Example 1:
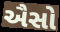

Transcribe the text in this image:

ઐસો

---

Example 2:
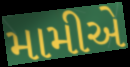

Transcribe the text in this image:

મામીએ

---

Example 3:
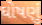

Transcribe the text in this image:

ઘોષણું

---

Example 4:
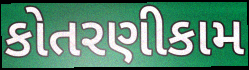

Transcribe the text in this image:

કોતરણીકામ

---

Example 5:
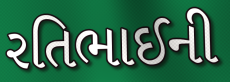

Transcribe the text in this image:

રતિભાઈની